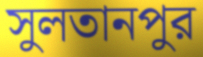
সুলতানপুর